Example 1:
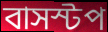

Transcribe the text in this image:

বাসস্টপ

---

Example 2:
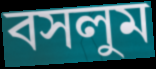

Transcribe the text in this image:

বসলুম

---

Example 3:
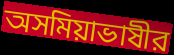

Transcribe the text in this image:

অসমিয়াভাষীর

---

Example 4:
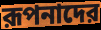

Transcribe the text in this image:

রূপনাদের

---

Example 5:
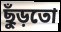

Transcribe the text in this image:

ছুঁড়তো